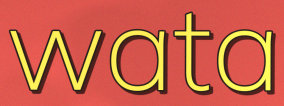
wata